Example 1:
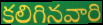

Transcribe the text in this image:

కలిగినవారి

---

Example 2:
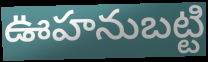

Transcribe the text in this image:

ఊహనుబట్టి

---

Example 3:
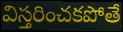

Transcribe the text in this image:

విస్తరించకపోతే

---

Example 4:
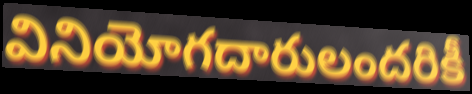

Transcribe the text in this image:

వినియోగదారులందరికీ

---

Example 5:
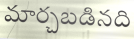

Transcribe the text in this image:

మార్చబడినది